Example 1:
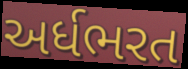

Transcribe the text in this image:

અર્ધભરત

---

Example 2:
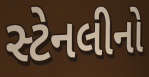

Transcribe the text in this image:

સ્ટેનલીનો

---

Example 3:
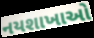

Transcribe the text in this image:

નયશાખાઓ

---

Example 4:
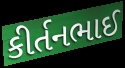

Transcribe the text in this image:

કીર્તનભાઈ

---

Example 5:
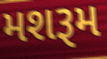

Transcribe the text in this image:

મશરૂમ